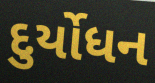
દુર્યોધન